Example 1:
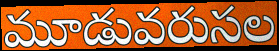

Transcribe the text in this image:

మూడువరుసల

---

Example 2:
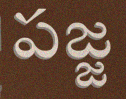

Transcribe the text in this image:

పజ్జ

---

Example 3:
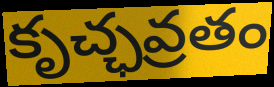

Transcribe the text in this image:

కృచ్ఛవ్రతం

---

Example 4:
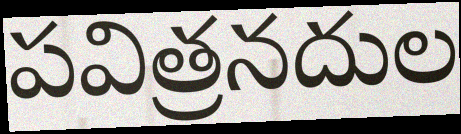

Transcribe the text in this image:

పవిత్రనదుల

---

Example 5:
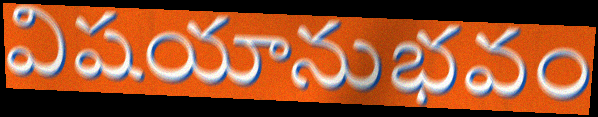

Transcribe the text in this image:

విషయానుభవం